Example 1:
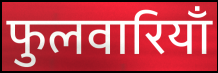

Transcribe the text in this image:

फुलवारियाँ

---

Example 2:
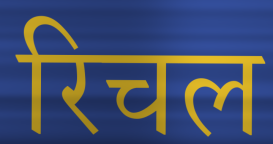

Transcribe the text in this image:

रिचल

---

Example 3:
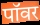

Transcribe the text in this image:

पॉवर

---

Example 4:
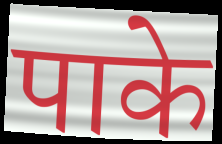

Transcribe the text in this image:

पाके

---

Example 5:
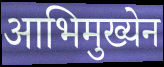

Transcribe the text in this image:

आभिमुख्येन